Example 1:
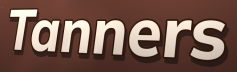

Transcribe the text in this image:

Tanners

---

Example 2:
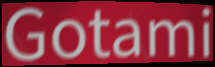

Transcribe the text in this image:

Gotami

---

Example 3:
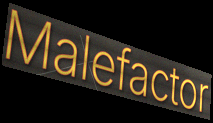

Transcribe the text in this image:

Malefactor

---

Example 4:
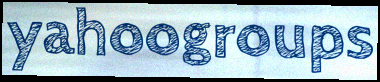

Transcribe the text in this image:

yahoogroups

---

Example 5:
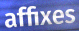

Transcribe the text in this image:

affixes